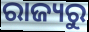
ରାଜ୍ୟରୁ